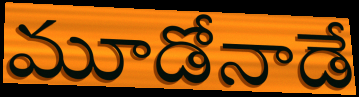
మూడోనాడే